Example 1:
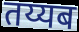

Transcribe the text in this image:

तय्यब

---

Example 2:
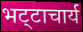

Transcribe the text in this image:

भट्‍टाचार्य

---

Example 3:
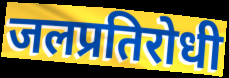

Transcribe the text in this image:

जलप्रतिरोधी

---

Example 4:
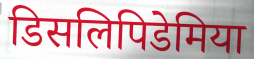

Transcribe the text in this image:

डिसलिपिडेमिया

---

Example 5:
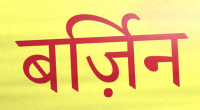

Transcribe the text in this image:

बर्ज़िन